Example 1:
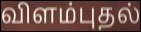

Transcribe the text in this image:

விளம்புதல்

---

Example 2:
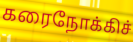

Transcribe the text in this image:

கரைநோக்கிச்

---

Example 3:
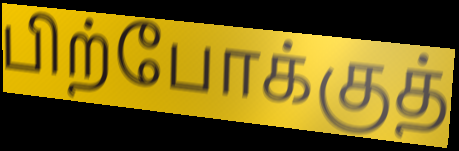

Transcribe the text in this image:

பிற்போக்குத்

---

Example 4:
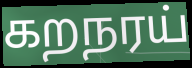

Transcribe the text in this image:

கறநரய்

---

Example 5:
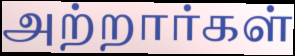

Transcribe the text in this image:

அற்றார்கள்